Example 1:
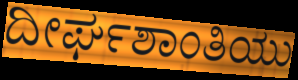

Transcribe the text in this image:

ದೀರ್ಘಶಾಂತಿಯು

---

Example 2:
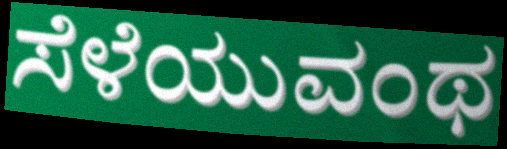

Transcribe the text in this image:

ಸೆಳೆಯುವಂಥ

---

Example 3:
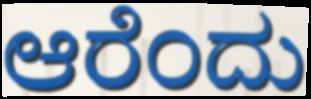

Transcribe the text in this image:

ಆರೆಂದು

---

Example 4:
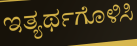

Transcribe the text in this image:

ಇತ್ಯರ್ಥಗೊಳಿಸಿ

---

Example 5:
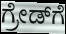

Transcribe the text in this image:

ಗ್ರೇಡ್‌ಗೆ